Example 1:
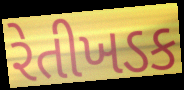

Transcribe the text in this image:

રેતીખડક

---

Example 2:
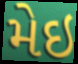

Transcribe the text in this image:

મેઇ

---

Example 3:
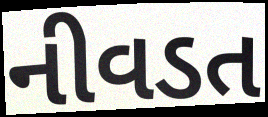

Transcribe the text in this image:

નીવડત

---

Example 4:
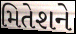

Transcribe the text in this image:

મિતેશને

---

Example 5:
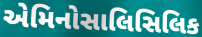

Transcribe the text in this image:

એમિનોસાલિસિલિક